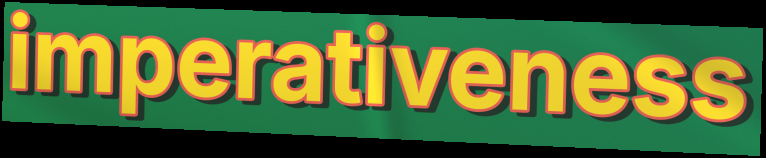
imperativeness